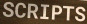
SCRIPTS